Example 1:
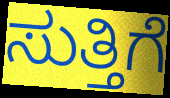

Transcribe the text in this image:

ಸುತ್ತಿಗೆ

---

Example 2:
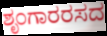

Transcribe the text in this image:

ಶೃಂಗಾರರಸದ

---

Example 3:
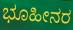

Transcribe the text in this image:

ಭೂಹೀನರ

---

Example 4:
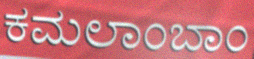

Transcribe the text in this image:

ಕಮಲಾಂಬಾಂ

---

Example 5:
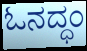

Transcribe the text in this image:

ಓನದ್ಧಂ